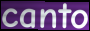
canto